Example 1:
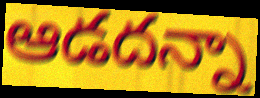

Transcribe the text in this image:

ఆడదన్నా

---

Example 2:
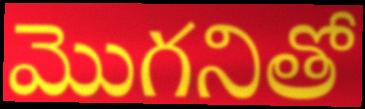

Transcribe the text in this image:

మొగనితో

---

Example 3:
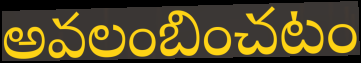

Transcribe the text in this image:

అవలంబించటం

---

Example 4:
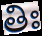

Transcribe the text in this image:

తిః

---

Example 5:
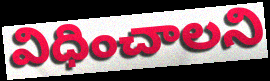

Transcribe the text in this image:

విధించాలని